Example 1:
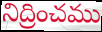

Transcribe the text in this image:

నిద్రించము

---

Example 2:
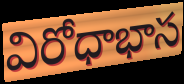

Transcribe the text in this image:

విరోధాభాస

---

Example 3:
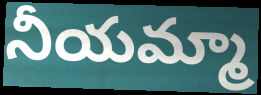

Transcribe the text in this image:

నీయమ్మా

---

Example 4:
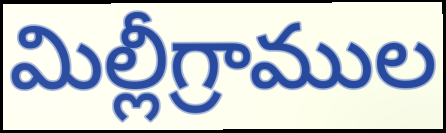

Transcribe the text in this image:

మిల్లీగ్రాముల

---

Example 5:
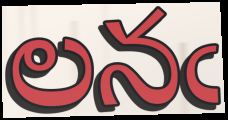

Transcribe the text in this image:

లనఁ